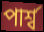
পাৰ্শ্ব